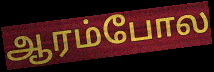
ஆரம்போல